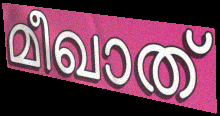
മീഖാത്